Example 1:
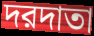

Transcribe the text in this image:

দরদাতা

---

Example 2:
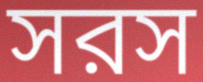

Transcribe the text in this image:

সরস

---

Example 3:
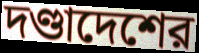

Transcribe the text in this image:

দণ্ডাদেশের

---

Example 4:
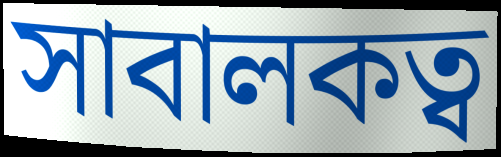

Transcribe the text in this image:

সাবালকত্ব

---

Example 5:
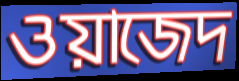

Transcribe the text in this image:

ওয়াজেদ